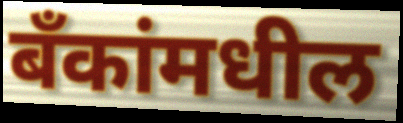
बँकांमधील